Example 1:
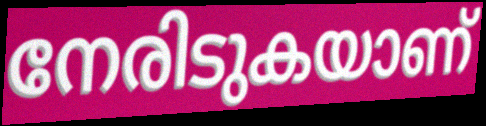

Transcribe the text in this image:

നേരിടുകയാണ്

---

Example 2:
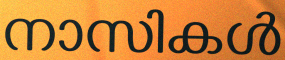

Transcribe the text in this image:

നാസികൾ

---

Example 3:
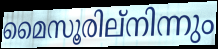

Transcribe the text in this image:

മൈസൂരില്നിന്നും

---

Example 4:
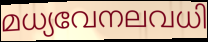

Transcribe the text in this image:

മധ്യവേനലവധി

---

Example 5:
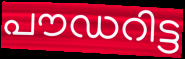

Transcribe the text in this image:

പൗഡറിട്ട